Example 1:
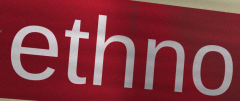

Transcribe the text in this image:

ethno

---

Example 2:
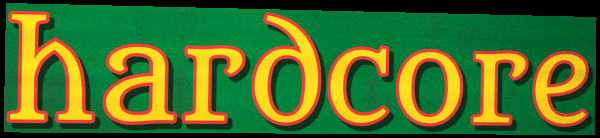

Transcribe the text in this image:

hardcore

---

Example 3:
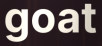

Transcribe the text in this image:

goat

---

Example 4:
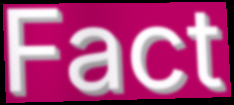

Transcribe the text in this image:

Fact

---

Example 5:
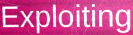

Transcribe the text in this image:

Exploiting